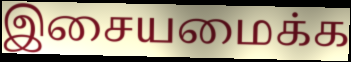
இசையமைக்க